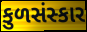
કુળસંસ્કાર